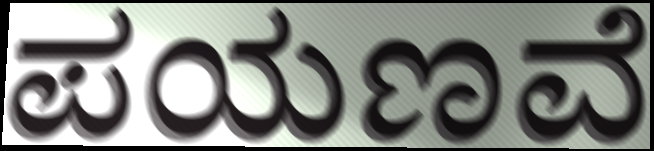
ಪಯಣವೆ